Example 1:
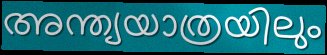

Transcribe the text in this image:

അന്ത്യയാത്രയിലും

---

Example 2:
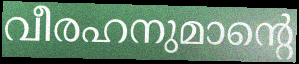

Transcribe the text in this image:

വീരഹനുമാന്റെ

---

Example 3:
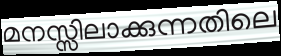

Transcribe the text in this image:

മനസ്സിലാക്കുന്നതിലെ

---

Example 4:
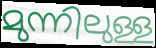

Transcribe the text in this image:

മുന്നിലുള്ള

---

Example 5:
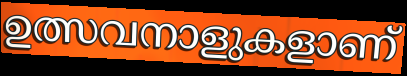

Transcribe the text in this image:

ഉത്സവനാളുകളാണ്